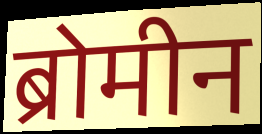
ब्रोमीन